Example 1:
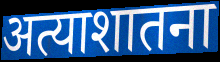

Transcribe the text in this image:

अत्याशातना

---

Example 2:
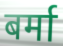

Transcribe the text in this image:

बर्मा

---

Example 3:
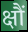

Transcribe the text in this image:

क्षौं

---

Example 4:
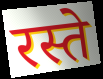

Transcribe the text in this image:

रस्ते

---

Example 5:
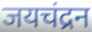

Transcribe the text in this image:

जयचंद्रन